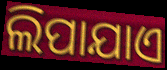
ଲିପାଯାଏ